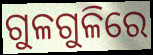
ଗୁଳଗୁଳିରେ